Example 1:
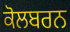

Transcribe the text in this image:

ਕੋਲਬਰਨ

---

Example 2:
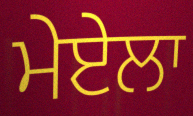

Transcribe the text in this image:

ਮੇਏਲਾ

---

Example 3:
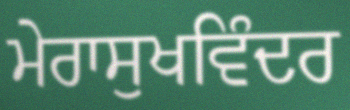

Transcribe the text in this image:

ਮੇਰਾਸੁਖਵਿੰਦਰ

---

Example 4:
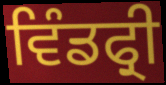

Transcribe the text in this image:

ਵਿੰਡਫ੍ਰੀ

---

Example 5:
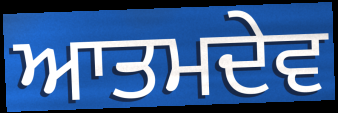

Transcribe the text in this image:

ਆਤਮਦੇਵ